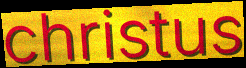
christus